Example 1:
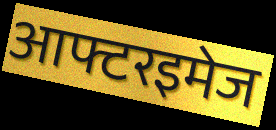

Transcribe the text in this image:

आफ्टरइमेज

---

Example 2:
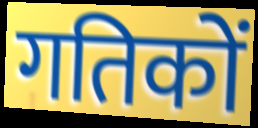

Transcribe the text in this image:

गतिकों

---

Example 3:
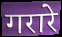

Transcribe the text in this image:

गरारे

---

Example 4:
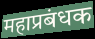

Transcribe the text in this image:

महाप्रबंधक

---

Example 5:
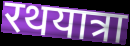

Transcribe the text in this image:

रथयात्रा